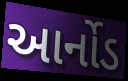
આર્નોડ